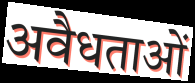
अवैधताओं